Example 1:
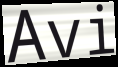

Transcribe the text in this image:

Avi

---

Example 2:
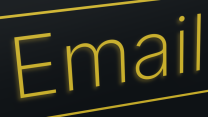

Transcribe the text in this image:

Email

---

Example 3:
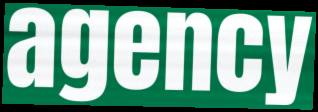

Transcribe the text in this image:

agency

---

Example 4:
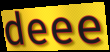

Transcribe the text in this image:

deee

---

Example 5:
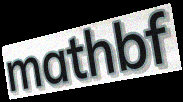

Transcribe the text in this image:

mathbf